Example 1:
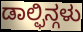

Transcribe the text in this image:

ಡಾಲ್ಫಿನ್ಗಳು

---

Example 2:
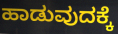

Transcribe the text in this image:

ಹಾಡುವುದಕ್ಕೆ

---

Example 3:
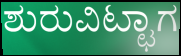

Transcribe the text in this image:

ಶುರುವಿಟ್ಟಾಗ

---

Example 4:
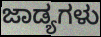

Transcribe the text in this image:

ಜಾಡ್ಯಗಳು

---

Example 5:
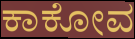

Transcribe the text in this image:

ಕಾಕೋವ